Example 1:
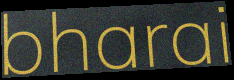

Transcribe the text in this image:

bharai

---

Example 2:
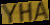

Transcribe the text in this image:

YHA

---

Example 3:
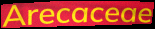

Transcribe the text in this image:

Arecaceae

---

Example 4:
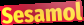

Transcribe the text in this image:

Sesamol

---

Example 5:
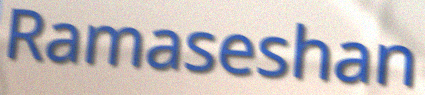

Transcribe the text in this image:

Ramaseshan